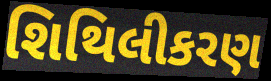
શિથિલીકરણ